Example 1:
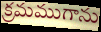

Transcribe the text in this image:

క్రమముగాను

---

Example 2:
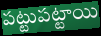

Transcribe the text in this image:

పట్టుపట్టాయి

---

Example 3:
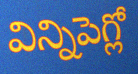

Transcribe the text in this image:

విన్నిపెగ్లో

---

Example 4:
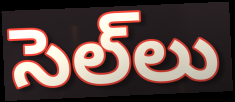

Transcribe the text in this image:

సెల్‌లు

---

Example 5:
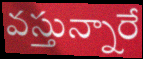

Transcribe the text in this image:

వస్తున్నారే